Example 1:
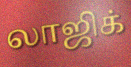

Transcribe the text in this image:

லாஜிக்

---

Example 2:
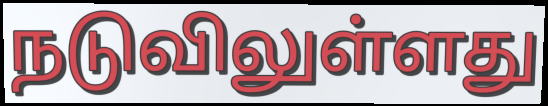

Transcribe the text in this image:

நடுவிலுள்ளது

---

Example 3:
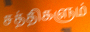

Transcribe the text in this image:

சத்திகளும்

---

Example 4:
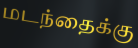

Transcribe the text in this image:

மடந்தைக்கு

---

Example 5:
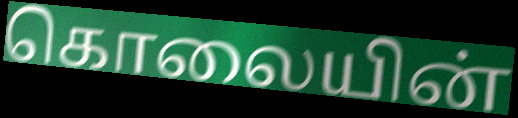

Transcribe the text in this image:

கொலையின்